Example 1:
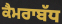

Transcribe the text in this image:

ਕੈਮਰਾਬੱਧ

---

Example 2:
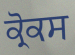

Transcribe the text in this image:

ਕ੍ਰੋਕਸ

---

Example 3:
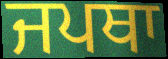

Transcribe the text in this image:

ਜਪਥਾ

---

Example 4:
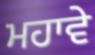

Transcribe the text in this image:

ਮਹਾਵੇ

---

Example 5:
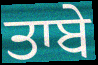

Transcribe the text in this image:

ਤਾਬੇ